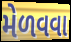
મેળવવા